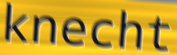
knecht